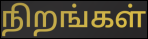
நிறங்கள்